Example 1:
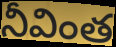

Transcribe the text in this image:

నీవింత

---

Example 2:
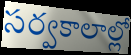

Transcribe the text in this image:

సర్వకాలాల్లో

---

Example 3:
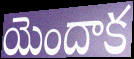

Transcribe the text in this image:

యెందాక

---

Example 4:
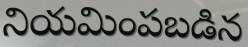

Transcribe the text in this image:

నియమింపబడిన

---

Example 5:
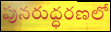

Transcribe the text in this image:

పునరుద్ధరణలో